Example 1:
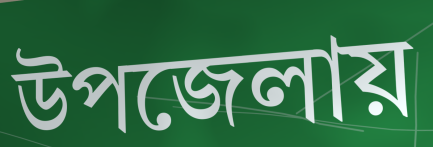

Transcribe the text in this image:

উপজেলায়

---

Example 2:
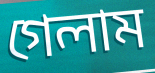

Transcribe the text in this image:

গেলাম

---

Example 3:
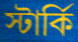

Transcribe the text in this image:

স্টার্কি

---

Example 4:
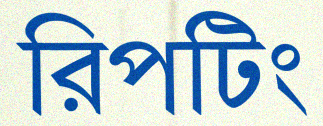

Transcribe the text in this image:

রিপটিং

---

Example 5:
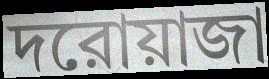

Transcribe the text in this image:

দরোয়াজা